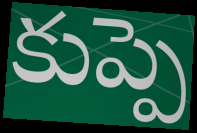
కుప్పె